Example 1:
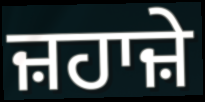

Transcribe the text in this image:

ਜ਼ਹਾਜ਼ੇ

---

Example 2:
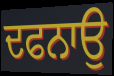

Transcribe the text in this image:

ਦਫਨਾਉ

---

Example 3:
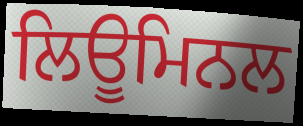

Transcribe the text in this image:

ਲਿਊਮਿਨਲ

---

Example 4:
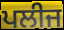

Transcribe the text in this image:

ਪਲੀਜ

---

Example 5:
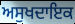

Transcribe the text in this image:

ਅਸੁਖਦਾਇਕ